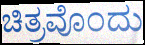
ಚಿತ್ರವೊಂದು